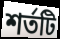
শর্তটি